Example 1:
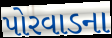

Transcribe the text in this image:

પોરવાડના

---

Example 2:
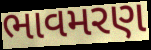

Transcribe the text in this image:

ભાવમરણ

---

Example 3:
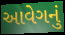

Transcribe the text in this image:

આવેગનું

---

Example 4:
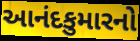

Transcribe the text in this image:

આનંદકુમારનો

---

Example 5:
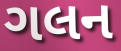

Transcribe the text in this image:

ગલન